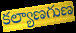
కల్యాణగుణ